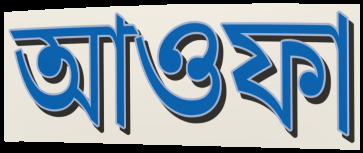
আওফা